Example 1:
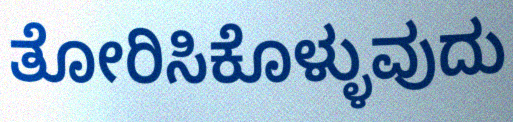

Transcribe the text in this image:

ತೋರಿಸಿಕೊಳ್ಳುವುದು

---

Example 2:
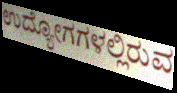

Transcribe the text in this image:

ಉದ್ಯೋಗಗಳಲ್ಲಿರುವ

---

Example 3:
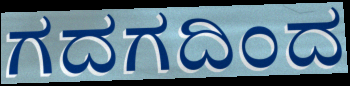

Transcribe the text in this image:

ಗದಗದಿಂದ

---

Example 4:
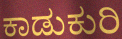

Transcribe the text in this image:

ಕಾಡುಕುರಿ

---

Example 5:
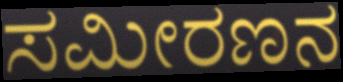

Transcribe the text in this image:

ಸಮೀರಣನ